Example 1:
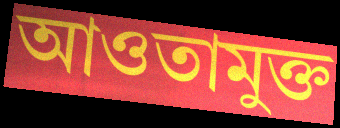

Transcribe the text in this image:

আওতামুক্ত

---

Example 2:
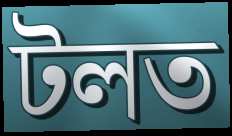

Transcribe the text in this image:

টলত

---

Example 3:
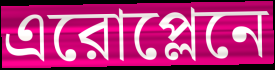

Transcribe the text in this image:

এরোপ্লেনে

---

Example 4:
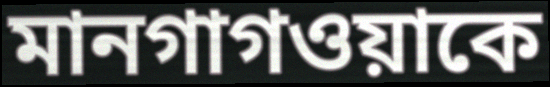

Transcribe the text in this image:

মানগাগওয়াকে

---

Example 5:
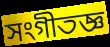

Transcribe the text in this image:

সংগীতজ্ঞ